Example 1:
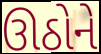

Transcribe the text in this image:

ઊઠોને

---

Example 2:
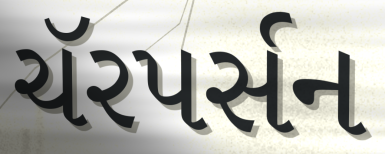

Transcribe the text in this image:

ચૅરપર્સન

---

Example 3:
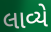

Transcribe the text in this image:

લાવ્યે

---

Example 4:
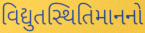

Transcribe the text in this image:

વિદ્યુતસ્થિતિમાનનો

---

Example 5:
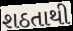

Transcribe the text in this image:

શઠતાથી